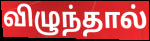
விழுந்தால்